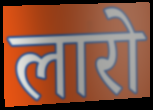
लारो